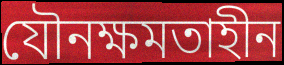
যৌনক্ষমতাহীন